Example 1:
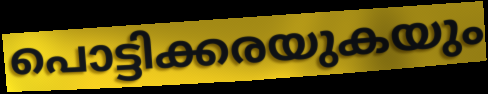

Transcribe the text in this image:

പൊട്ടിക്കരയുകയും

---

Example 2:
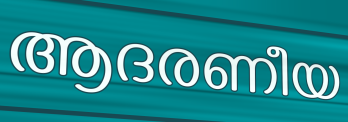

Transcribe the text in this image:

ആദരണീയ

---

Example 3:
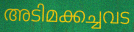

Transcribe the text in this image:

അടിമക്കച്ചവട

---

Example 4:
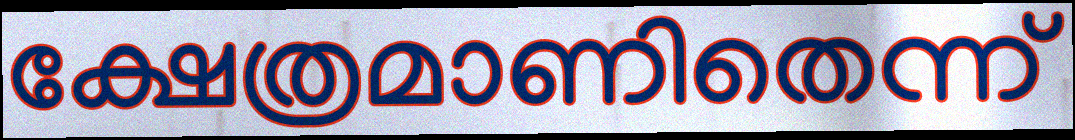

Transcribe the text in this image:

ക്ഷേത്രമാണിതെന്ന്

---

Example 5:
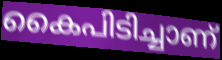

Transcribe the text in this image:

കൈപിടിച്ചാണ്